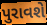
પુરાવશે